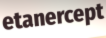
etanercept